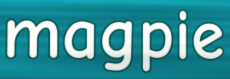
magpie